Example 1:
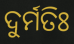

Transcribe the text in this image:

ଦୁର୍ମତିଃ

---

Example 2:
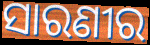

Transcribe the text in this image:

ସାରଣୀର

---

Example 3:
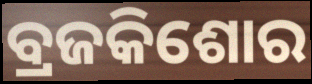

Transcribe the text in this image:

ବ୍ରଜକିଶୋର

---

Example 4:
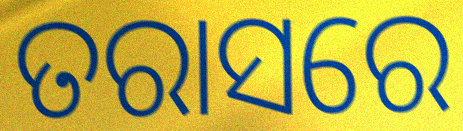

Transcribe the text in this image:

ତରାସରେ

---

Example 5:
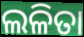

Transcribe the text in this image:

ଲଳିତା